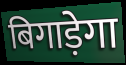
बिगाड़ेगा